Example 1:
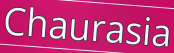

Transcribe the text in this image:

Chaurasia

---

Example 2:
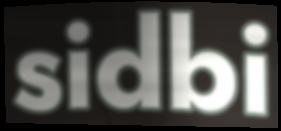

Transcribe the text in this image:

sidbi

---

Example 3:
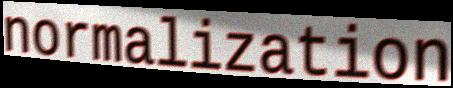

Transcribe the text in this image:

normalization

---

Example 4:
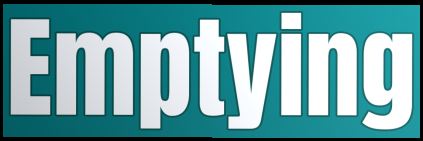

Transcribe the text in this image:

Emptying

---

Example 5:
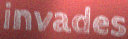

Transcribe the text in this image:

invades